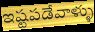
ఇష్టపడేవాళ్ళు